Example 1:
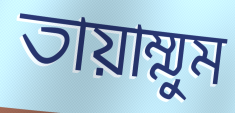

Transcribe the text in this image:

তায়াম্মুম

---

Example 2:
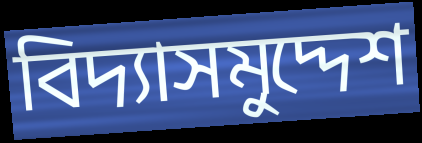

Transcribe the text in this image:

বিদ্যাসমুদ্দেশ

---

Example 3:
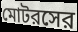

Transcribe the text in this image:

মোটরসের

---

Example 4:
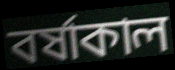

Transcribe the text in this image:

বর্ষাকাল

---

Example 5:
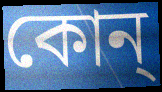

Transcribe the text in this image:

কোন্